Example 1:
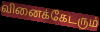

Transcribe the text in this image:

வினைக்கேடரும்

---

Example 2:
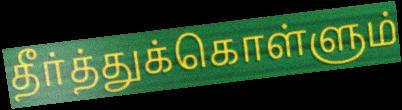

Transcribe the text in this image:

தீர்த்துக்கொள்ளும்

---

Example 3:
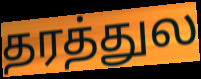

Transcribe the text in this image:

தரத்துல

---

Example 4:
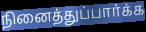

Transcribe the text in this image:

நினைத்துப்பார்க்க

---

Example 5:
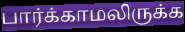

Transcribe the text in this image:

பார்க்காமலிருக்க